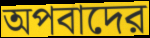
অপবাদের